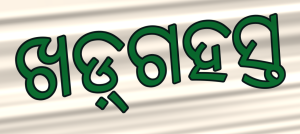
ଖଡ଼୍‌ଗହସ୍ତ